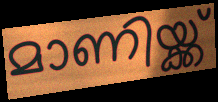
മാണിയ്ക്ക്